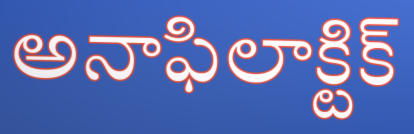
అనాఫిలాక్టిక్